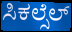
ಸಿಕಲ್ಸೆಲ್